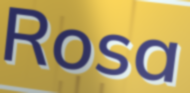
Rosa